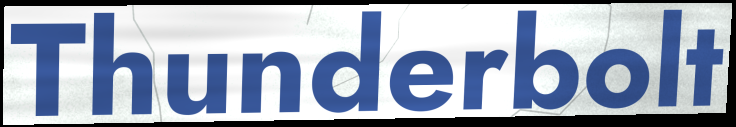
Thunderbolt